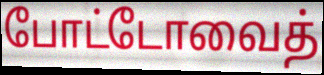
போட்டோவைத்